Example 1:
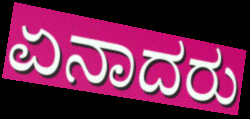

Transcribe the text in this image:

ಏನಾದರು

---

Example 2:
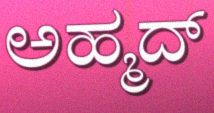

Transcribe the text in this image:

ಅಹ್ಮದ್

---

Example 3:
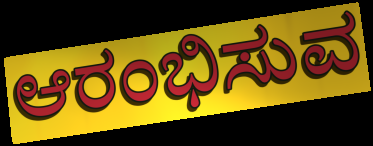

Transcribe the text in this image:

ಆರಂಭಿಸುವ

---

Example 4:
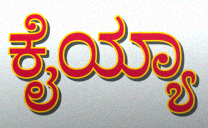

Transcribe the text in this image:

ಕೈಯ್ಯಾ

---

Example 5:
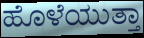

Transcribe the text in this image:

ಹೊಳೆಯುತ್ತಾ